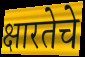
क्षारतेचे